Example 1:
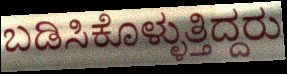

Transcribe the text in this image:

ಬಡಿಸಿಕೊಳ್ಳುತ್ತಿದ್ದರು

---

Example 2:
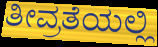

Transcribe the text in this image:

ತೀವ್ರತೆಯಲ್ಲಿ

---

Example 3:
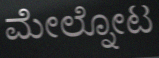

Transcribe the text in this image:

ಮೇಲ್ನೋಟ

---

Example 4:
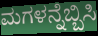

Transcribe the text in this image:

ಮಗಳನ್ನೆಬ್ಬಿಸಿ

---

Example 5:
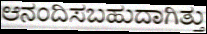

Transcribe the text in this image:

ಆನಂದಿಸಬಹುದಾಗಿತ್ತು